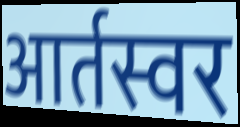
आर्तस्वर